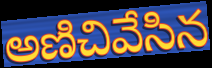
అణిచివేసిన